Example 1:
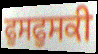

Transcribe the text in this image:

ਫੁਸਫੁਸਕੀ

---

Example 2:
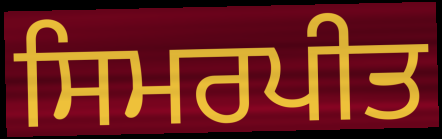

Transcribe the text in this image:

ਸਿਮਰਪੀਤ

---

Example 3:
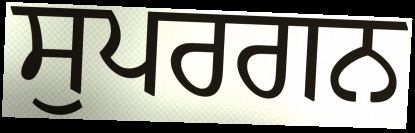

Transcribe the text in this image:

ਸੁਪਰਗਨ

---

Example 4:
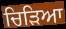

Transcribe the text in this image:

ਚਿੜਿਆ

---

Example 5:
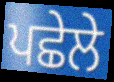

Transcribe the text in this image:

ਪਛੇਲੇ